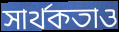
সার্থকতাও